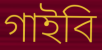
গাইবি